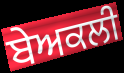
ਬੇਅਕਲੀ